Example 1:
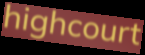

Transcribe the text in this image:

highcourt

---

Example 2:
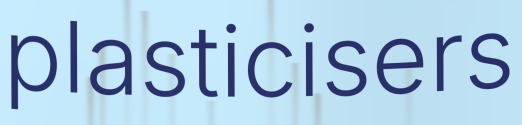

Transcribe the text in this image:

plasticisers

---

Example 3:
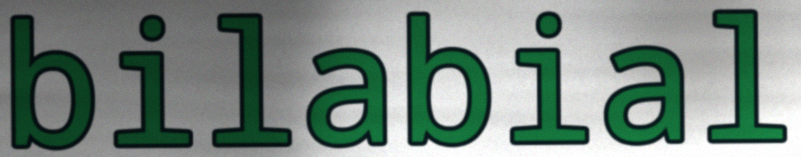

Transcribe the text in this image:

bilabial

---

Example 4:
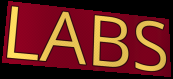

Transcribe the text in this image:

LABS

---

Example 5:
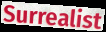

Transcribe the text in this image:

Surrealist